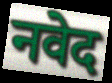
नवेद